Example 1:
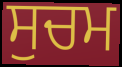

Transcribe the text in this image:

ਸੁਚਮ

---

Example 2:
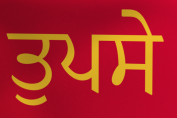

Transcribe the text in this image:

ਤੁਪਸੇ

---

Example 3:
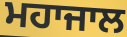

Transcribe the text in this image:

ਮਹਾਜਾਲ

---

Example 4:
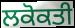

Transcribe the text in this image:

ਲਕੋਕਤੀ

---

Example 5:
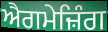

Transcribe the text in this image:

ਐਗਮੇਜ਼ਿੰਗ